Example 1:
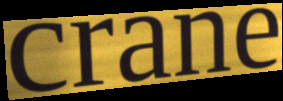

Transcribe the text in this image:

crane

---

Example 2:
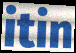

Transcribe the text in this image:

itin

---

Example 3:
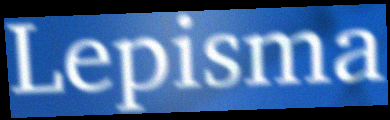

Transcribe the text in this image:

Lepisma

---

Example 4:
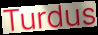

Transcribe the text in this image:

Turdus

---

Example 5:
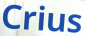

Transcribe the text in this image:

Crius